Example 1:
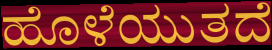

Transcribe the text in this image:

ಹೊಳೆಯುತದೆ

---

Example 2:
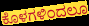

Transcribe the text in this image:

ಕೊಳಗಳಿಂದಲೂ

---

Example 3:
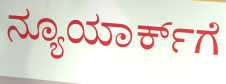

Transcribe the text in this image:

ನ್ಯೂಯಾರ್ಕ್‌ಗೆ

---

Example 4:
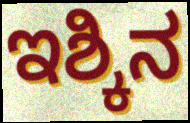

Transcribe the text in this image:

ಇಶ್ಕಿನ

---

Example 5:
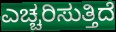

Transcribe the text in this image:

ಎಚ್ಚರಿಸುತ್ತಿದೆ